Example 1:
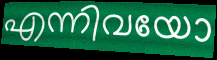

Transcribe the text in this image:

എന്നിവയോ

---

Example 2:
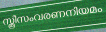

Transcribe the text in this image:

സ്ത്രീസംവരണനിയമം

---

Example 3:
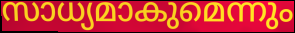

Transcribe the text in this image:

സാധ്യമാകുമെന്നും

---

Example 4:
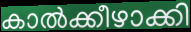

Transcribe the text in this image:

കാൽക്കീഴാക്കി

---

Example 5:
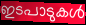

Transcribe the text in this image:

ഇടപാടുകൾ